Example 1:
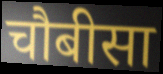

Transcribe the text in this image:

चौबीसा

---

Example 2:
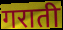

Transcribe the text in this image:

गराती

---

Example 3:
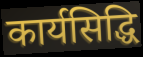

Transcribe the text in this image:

कार्यसिद्धि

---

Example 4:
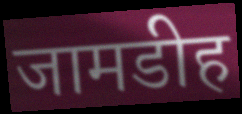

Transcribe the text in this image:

जामडीह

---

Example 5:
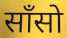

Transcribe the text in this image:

साँसो